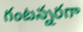
గంటన్నరగా